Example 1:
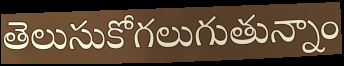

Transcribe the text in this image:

తెలుసుకోగలుగుతున్నాం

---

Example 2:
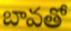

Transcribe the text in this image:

బావతో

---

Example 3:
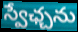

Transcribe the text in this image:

స్వేఛ్చను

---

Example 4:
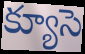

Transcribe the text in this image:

క్యూసె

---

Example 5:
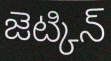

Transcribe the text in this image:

జెట్కిన్